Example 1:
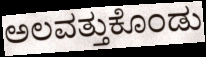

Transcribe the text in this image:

ಅಲವತ್ತುಕೊಂಡು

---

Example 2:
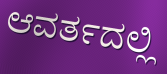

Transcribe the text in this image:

ಆವರ್ತದಲ್ಲಿ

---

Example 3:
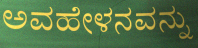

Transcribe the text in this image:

ಅವಹೇಳನವನ್ನು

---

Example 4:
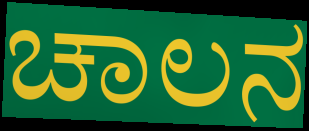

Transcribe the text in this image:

ಚಾಲನ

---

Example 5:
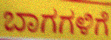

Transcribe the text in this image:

ಬಾಗಗಳಿಗೆ